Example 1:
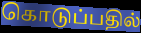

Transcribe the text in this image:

கொடுப்பதில்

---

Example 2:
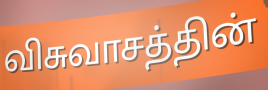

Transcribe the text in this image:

விசுவாசத்தின்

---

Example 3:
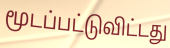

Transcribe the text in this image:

மூடப்பட்டுவிட்டது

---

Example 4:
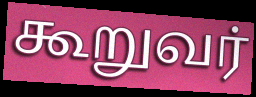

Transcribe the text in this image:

கூறுவர்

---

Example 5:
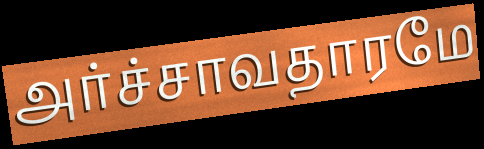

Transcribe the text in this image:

அர்ச்சாவதாரமே